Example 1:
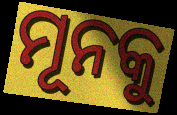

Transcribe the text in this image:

ମୂନକୁ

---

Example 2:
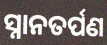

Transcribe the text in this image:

ସ୍ନାନତର୍ପଣ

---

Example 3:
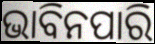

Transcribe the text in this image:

ଭାବିନପାରି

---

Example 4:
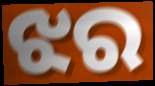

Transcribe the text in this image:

ଝର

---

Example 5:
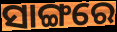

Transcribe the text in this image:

ସାଙ୍ଗରେ